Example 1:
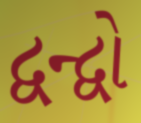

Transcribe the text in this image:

દ્વન્દ્વો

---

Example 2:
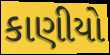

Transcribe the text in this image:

કાણીયો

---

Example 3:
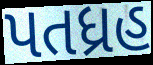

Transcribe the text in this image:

પતધ્રહ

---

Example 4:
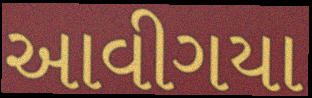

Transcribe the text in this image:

આવીગયા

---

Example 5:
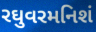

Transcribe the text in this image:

રઘુવરમનિશં